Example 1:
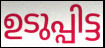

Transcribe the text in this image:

ഉടുപ്പിട്ട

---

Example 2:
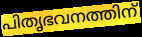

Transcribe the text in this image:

പിതൃഭവനത്തിന്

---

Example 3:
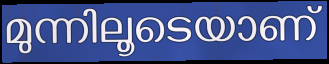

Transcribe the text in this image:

മുന്നിലൂടെയാണ്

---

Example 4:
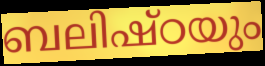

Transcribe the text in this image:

ബലിഷ്ഠയും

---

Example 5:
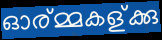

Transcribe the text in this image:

ഓര്മ്മകള്ക്കു